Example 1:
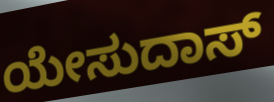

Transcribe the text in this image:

ಯೇಸುದಾಸ್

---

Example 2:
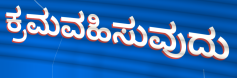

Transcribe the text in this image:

ಕ್ರಮವಹಿಸುವುದು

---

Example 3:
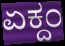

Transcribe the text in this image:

ಏಕ್ದಂ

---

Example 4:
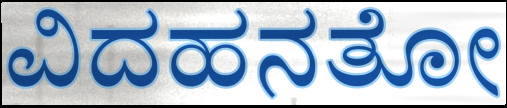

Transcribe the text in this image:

ವಿದಹನತೋ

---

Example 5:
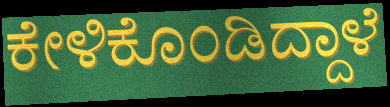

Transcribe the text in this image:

ಕೇಳಿಕೊಂಡಿದ್ದಾಳೆ